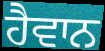
ਹੈਵਾਨ